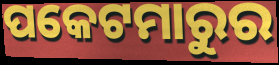
ପକେଟମାରୁର